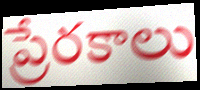
ప్రేరకాలు